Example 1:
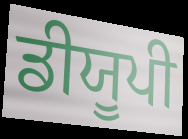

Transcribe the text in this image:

ਡੀਯੂਪੀ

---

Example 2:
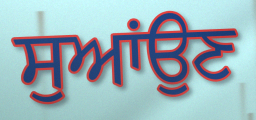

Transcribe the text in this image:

ਸੁਆਂਉਣ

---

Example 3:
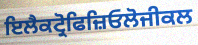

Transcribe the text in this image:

ਇਲੈਕਟ੍ਰੋਫਿਜ਼ਿਓਲੋਜੀਕਲ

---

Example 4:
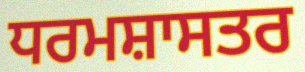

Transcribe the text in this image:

ਧਰਮਸ਼ਾਸਤਰ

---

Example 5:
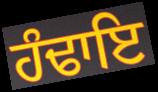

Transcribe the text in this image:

ਹੰਢਾਇ